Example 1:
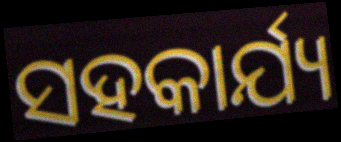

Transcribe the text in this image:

ସହକାର୍ଯ୍ୟ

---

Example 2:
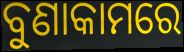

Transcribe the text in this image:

ବୁଣାକାମରେ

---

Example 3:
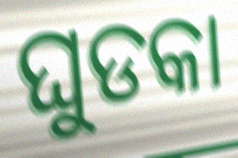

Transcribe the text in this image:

ଘୁଡକା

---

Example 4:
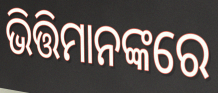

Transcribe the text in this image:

ଭିତ୍ତିମାନଙ୍କରେ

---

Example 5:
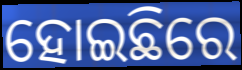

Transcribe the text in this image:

ହୋଇଛିରେ